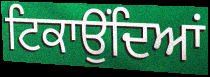
ਟਿਕਾਉਂਦਿਆਂ